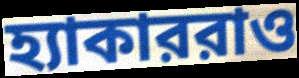
হ্যাকাররাও